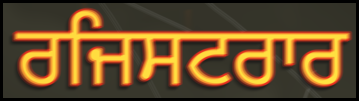
ਰਜਿਸਟਰਾਰ